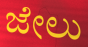
ಜೇಲು